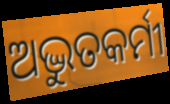
ଅଦ୍ଭୁତକର୍ମୀ